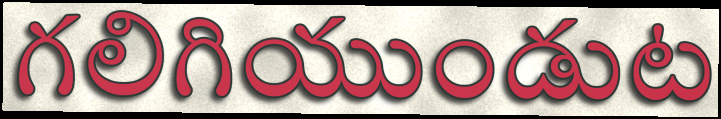
గలిగియుండుట